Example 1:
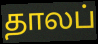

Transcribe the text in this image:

தாலப்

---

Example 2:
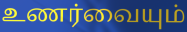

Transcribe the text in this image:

உணர்வையும்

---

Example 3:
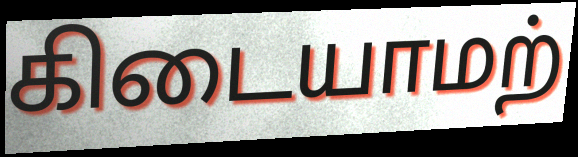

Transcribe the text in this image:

கிடையாமற்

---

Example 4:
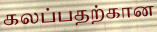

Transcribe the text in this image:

கலப்பதற்கான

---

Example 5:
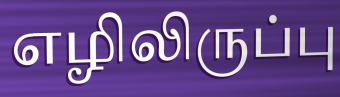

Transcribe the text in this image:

எழிலிருப்பு